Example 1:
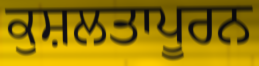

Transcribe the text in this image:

ਕੁਸ਼ਲਤਾਪੂਰਨ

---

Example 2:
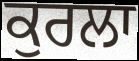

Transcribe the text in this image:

ਕੁਰਲਾ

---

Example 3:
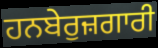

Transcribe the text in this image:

ਹਨਬੇਰੁਜ਼ਗਾਰੀ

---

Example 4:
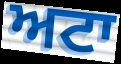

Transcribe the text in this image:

ਅਟਾ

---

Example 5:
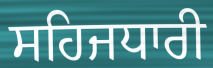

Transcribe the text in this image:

ਸਹਿਜਧਾਰੀ